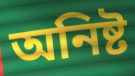
অনিষ্ট